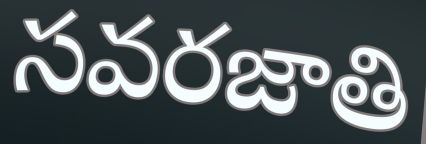
సవరజాతి